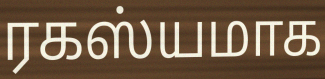
ரகஸ்யமாக